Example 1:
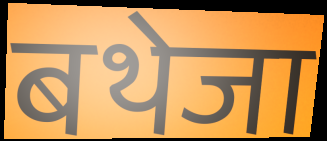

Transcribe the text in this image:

बथेजा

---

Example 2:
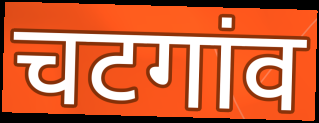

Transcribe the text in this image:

चटगांव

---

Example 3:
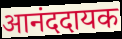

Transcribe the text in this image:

आनंददायक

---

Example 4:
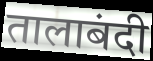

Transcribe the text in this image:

तालाबंदी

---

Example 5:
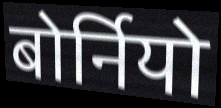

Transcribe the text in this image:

बोर्नियो